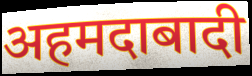
अहमदाबादी